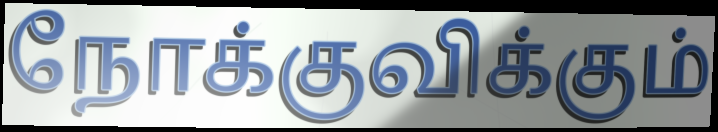
நோக்குவிக்கும்